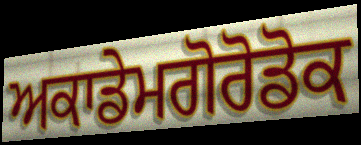
ਅਕਾਡੇਮਗੋਰੋਡੋਕ